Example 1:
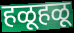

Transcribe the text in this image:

हळूहळू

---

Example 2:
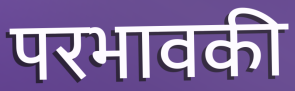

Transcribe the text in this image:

परभावकी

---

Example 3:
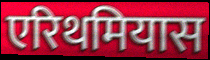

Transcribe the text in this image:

एरिथमियास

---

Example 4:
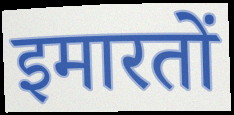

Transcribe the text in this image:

इमारतों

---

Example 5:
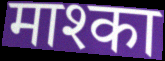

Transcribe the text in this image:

माश्का